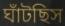
ঘাঁটছিস